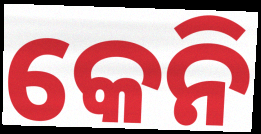
କେନି